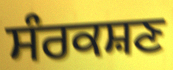
ਸੰਰਕਸ਼ਣ